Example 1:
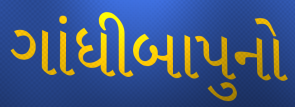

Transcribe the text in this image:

ગાંધીબાપુનો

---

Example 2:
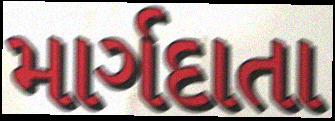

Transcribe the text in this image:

માર્ગદાતા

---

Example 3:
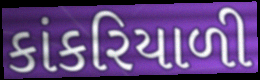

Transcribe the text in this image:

કાંકરિયાળી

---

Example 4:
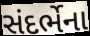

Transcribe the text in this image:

સંદર્ભેના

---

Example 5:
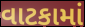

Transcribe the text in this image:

વાટકામાં